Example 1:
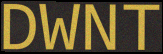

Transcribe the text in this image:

DWNT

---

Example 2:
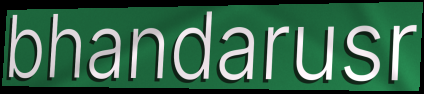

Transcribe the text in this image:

bhandarusr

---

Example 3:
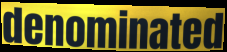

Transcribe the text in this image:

denominated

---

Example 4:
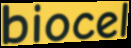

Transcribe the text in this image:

biocel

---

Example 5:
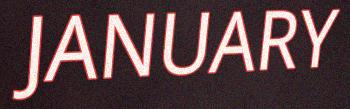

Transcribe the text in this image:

JANUARY